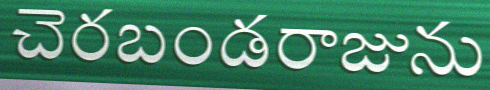
చెరబండరాజును